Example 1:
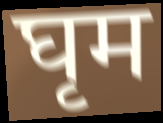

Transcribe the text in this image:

घृम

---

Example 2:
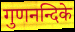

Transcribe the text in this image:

गुणनन्दिके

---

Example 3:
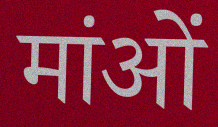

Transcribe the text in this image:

मांओं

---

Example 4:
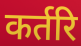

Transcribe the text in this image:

कर्तरि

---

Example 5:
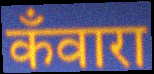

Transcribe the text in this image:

कँवारा